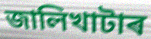
জালিখাটাৰ